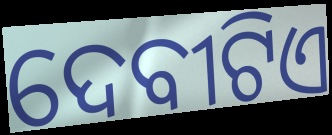
ଦେବୀଟିଏ